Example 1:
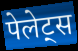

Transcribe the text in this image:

पेलेट्स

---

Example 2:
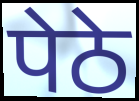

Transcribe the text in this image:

पेठे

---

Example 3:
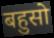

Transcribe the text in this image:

बहुसो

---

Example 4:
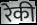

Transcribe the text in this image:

रेकी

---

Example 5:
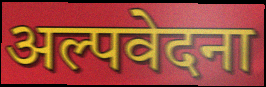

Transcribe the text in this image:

अल्पवेदना